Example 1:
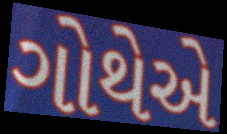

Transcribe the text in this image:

ગોથેએ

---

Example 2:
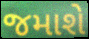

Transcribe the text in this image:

જમાશે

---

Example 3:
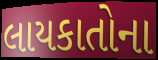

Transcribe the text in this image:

લાયકાતોના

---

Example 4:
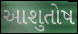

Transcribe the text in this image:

આશુતોષ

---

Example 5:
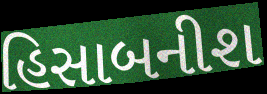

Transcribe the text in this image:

હિસાબનીશ